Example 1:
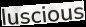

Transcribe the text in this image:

luscious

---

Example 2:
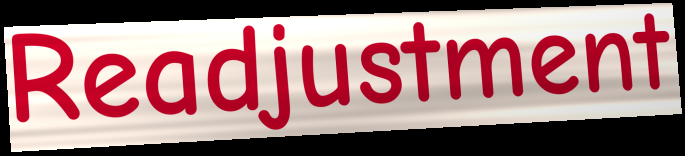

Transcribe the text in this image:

Readjustment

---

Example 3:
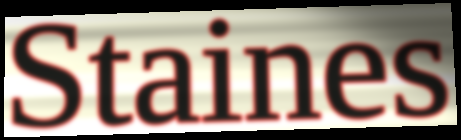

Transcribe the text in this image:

Staines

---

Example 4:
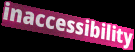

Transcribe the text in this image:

inaccessibility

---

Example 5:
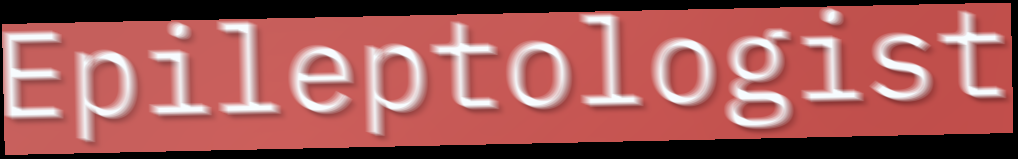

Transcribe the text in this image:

Epileptologist